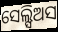
ସେଲ୍ସିଅସ